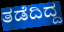
ತಡೆದಿದ್ದ